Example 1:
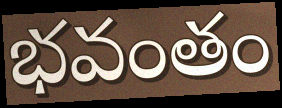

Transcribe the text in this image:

భవంతం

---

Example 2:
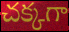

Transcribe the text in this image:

చక్కగా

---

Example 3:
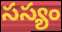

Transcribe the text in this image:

సస్యం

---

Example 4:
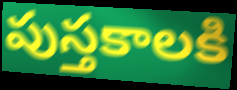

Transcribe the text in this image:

పుస్తకాలకి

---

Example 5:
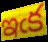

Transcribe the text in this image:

ఇఁక